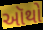
ઑથો